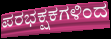
ಪರಭಕ್ಷಕಗಳಿಂದ